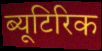
ब्यूटिरिक